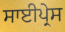
ਸਾਈਪ੍ਰੇਸ